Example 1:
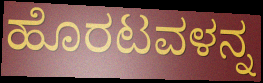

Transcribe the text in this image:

ಹೊರಟವಳನ್ನ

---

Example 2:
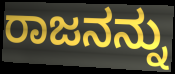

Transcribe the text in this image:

ರಾಜನನ್ನು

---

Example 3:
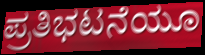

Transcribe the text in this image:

ಪ್ರತಿಭಟನೆಯೂ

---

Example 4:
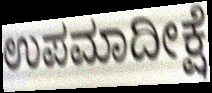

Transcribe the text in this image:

ಉಪಮಾದೀಕ್ಷೆ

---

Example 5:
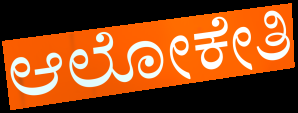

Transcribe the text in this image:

ಆಲೋಕೇತಿ